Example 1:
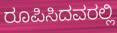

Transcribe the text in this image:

ರೂಪಿಸಿದವರಲ್ಲಿ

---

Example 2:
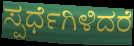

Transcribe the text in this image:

ಸ್ಪರ್ಧೆಗಿಳಿದರೆ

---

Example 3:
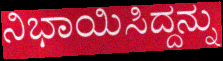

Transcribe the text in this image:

ನಿಭಾಯಿಸಿದ್ದನ್ನು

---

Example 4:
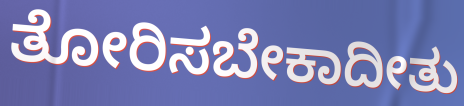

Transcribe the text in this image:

ತೋರಿಸಬೇಕಾದೀತು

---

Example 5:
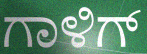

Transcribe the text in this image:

ಗಾಳಿಗ್